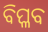
ବିପ୍ଳବ